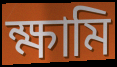
ক্ষামি